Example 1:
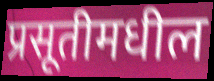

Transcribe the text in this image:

प्रसूतीमधील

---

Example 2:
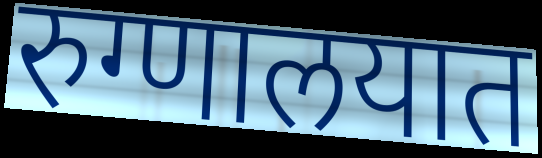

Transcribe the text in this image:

रुग्णालयात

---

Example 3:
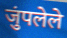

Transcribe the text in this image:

जुंपलेले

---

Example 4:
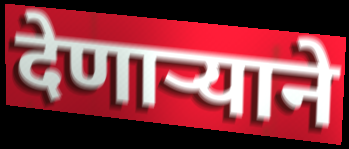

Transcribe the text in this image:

देणार्‍याने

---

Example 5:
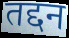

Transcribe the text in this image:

तद्दन